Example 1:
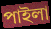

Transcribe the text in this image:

পাইলা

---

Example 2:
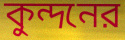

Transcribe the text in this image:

কুন্দনের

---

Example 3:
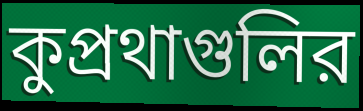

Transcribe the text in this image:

কুপ্রথাগুলির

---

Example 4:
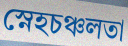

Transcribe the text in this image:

স্নেহচঞ্চলতা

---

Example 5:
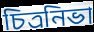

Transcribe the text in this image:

চিত্রনিভা